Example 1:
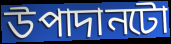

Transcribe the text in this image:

উপাদানটো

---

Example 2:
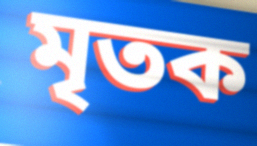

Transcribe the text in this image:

মৃতক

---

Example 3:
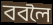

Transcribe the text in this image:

ববলৈ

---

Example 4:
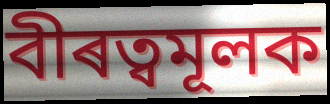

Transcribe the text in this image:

বীৰত্বমূলক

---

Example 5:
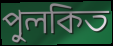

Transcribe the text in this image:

পুলকিত